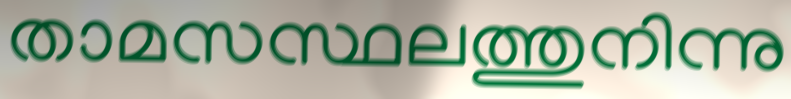
താമസസ്ഥലത്തുനിന്നു